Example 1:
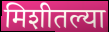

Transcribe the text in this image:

मिशीतल्या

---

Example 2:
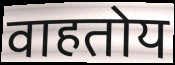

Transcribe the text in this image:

वाहतोय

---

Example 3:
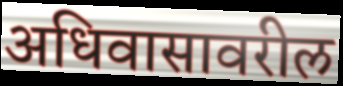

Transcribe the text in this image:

अधिवासावरील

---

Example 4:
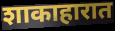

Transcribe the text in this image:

शाकाहारात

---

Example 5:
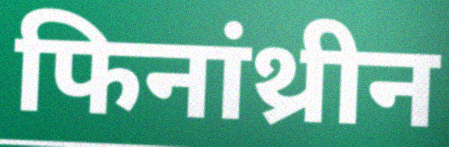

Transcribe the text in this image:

फिनांथ्रीन